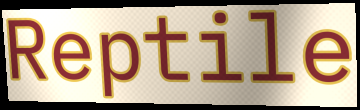
Reptile